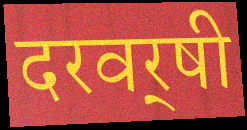
दरवर्षी